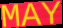
MAY